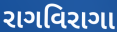
રાગવિરાગા